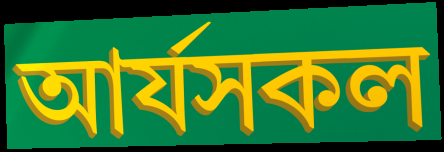
আৰ্যসকল